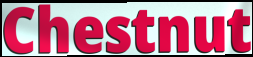
Chestnut